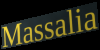
Massalia